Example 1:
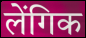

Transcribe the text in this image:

लेंगिक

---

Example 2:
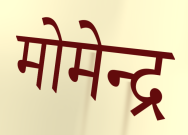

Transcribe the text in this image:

मोमेन्द्र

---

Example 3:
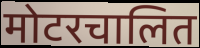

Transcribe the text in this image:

मोटरचालित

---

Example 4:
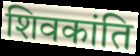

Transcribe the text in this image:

शिवकांति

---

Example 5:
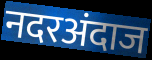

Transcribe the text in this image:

नदरअंदाज